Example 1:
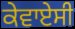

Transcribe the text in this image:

ਕੇਵਾਏਸੀ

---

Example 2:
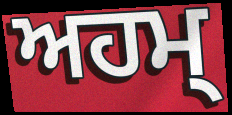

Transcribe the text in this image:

ਅਹਮ੍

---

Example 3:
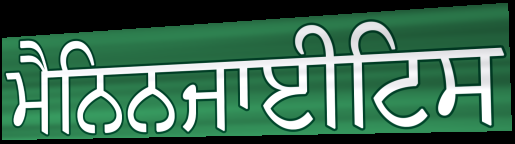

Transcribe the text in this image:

ਮੈਨਿਨਜਾਈਟਿਸ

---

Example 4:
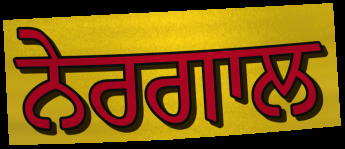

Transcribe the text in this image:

ਨੇਰਗਾਲ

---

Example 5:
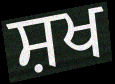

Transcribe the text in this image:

ਸ਼ਖ